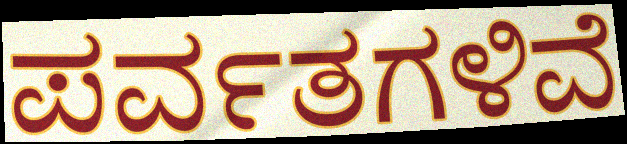
ಪರ್ವತಗಳಿವೆ